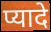
प्यादे